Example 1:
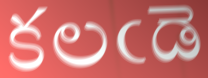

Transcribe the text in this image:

కలఁడె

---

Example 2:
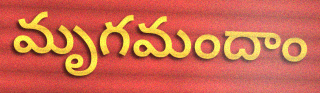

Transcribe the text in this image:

మృగమందాం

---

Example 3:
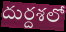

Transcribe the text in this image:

దుర్దశలో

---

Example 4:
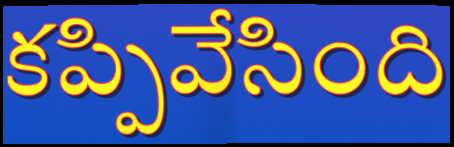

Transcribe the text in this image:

కప్పివేసింది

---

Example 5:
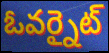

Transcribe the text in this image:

ఓవర్నైట్